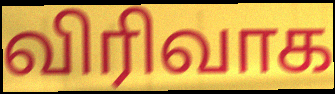
விரிவாக